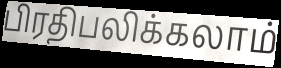
பிரதிபலிக்கலாம்